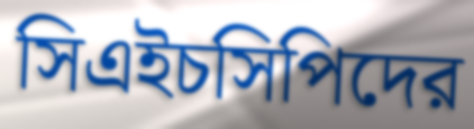
সিএইচসিপিদের